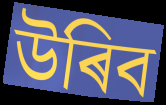
উৰিব